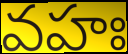
వహః